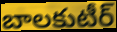
బాలకుటీర్